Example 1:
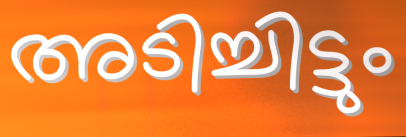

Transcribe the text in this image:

അടിച്ചിട്ടും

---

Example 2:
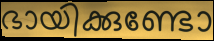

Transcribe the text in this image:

ഭായിക്കുണ്ടോ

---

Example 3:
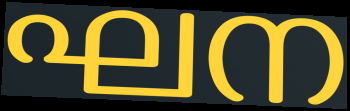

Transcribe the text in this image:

ഘന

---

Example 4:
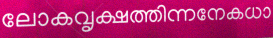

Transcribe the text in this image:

ലോകവൃക്ഷത്തിന്നനേകധാ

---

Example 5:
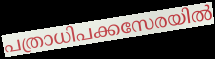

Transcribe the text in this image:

പത്രാധിപക്കസേരയിൽ